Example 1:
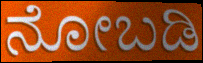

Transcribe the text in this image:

ನೋಬಡಿ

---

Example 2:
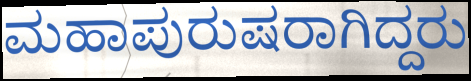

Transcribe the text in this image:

ಮಹಾಪುರುಷರಾಗಿದ್ದರು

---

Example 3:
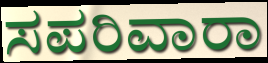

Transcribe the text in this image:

ಸಪರಿವಾರಾ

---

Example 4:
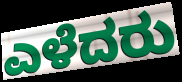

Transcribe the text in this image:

ಎಳೆದರು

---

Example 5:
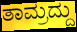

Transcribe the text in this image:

ತಾಮ್ರದ್ದು